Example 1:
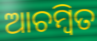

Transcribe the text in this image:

ଆଚମ୍ବିତ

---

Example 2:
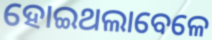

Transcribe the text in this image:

ହୋଇଥଲାବେଳେ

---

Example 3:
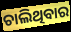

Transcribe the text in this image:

ଚାଲିଥିବାର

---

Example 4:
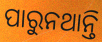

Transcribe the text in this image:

ପାରୁନଥାନ୍ତି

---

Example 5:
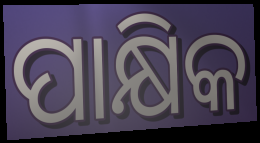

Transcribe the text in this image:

ପାକ୍ଷିକ